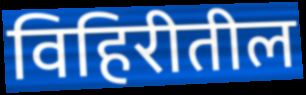
विहिरीतील